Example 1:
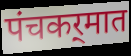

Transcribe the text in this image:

पंचकर्मात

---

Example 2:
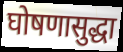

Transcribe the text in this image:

घोषणासुद्धा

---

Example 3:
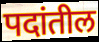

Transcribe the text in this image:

पदांतील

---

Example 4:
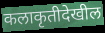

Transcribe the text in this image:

कलाकृतीदेखील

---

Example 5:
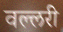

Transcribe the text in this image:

वल्लरी